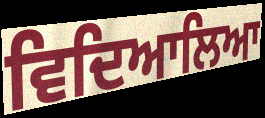
ਵਿਦਿਆਲਿਆ